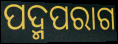
ପଦ୍ମପରାଗ